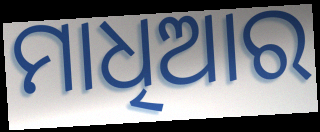
ମାଧିଆର